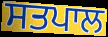
ਸਤਪਾਲ